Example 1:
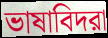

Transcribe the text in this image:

ভাষাবিদরা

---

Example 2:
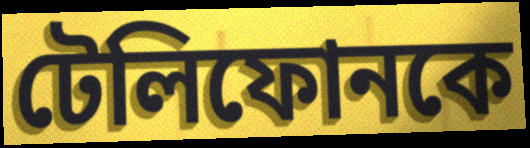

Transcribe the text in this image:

টেলিফোনকে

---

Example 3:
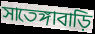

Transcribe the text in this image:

সাতেঙ্গাবাড়ি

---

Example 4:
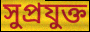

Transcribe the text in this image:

সুপ্রযুক্ত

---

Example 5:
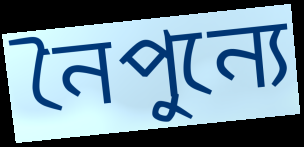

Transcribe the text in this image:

নৈপুন্যে